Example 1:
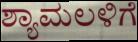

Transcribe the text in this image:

ಶ್ಯಾಮಲಳಿಗೆ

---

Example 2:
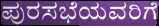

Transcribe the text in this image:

ಪುರಸಭೆಯವರಿಗೆ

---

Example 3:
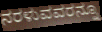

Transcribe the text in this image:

ನರಳುವವರನ್ನೂ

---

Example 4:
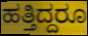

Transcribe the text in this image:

ಹತ್ತಿದ್ದರೂ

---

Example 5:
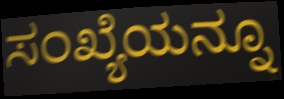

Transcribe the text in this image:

ಸಂಖ್ಯೆಯನ್ನೂ